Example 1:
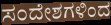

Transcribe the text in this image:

ಸಂದೇಶಗಳಿಂದ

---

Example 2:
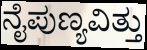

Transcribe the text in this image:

ನೈಪುಣ್ಯವಿತ್ತು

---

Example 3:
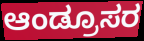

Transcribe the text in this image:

ಆಂಡ್ರೂಸರ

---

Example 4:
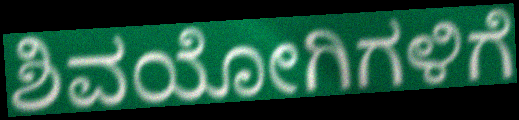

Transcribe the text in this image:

ಶಿವಯೋಗಿಗಳಿಗೆ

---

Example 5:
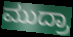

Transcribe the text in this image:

ಮುದ್ರಾ